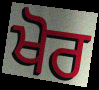
ਖੋਰ